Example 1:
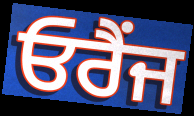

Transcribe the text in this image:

ਓਰੈਂਜ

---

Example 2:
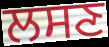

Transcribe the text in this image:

ਲਸਣ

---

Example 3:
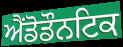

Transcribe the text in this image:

ਐਂਡੋਡੌਨਟਿਕ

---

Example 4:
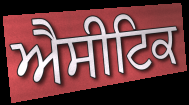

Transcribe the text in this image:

ਐਸੀਟਿਕ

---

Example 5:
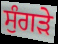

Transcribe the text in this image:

ਸੁੰਗੜੇ